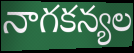
నాగకన్యల